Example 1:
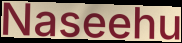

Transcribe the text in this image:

Naseehu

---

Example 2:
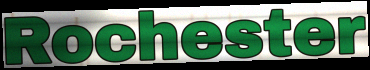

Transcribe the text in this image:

Rochester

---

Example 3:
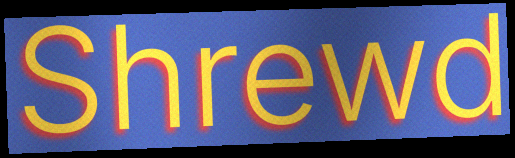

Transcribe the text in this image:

Shrewd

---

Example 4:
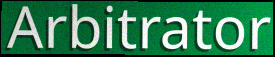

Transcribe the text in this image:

Arbitrator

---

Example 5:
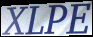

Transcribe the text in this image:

XLPE